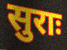
सुराः